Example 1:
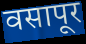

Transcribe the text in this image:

वसापूर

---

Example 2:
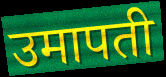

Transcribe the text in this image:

उमापती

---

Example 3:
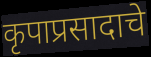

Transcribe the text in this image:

कृपाप्रसादाचे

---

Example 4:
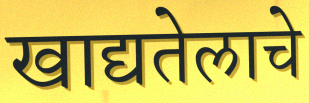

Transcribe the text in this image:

खाद्यतेलाचे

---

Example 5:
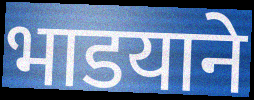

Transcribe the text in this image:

भाडयाने